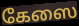
கேஸை